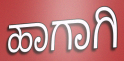
ಹಾಗಾಗಿ